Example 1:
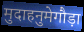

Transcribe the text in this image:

मुदाहनुमेगौड़ा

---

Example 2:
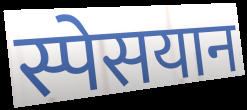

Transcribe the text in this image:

स्पेसयान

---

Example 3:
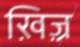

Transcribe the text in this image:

ख़िज़्र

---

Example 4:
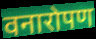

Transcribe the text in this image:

वनारोपण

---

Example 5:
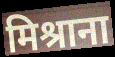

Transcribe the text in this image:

मिश्राना